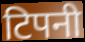
टिपनी